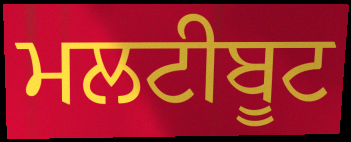
ਮਲਟੀਬੂਟ